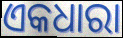
ଏକଧାରା